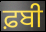
ਫ਼ਬੀ